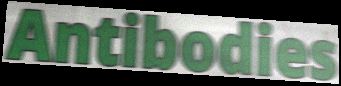
Antibodies